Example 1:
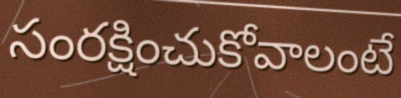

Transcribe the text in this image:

సంరక్షించుకోవాలంటే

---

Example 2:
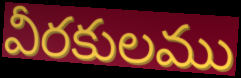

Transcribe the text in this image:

వీరకులము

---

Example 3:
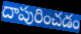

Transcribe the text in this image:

దాపురించడం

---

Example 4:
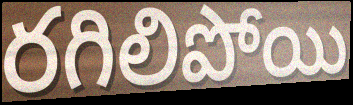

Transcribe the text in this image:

రగిలిపోయి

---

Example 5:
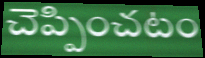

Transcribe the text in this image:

చెప్పించటం